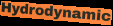
Hydrodynamic